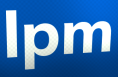
lpm